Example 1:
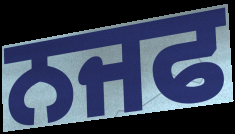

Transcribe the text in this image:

ਨਜਫ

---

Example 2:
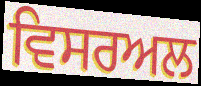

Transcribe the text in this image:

ਵਿਸਰਅਲ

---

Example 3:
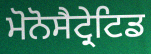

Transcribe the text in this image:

ਮੋਨੋਸੈਟ੍ਰੇਟਿਡ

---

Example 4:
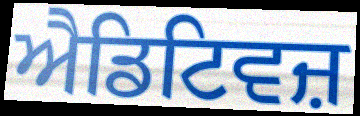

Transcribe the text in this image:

ਐਡਿਟਿਵਜ਼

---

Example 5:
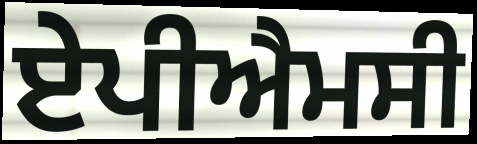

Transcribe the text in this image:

ਏਪੀਐਮਸੀ